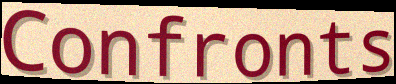
Confronts